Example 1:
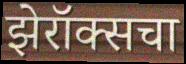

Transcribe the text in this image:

झेरॉक्सचा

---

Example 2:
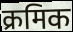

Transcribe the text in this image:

क्रमिक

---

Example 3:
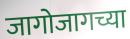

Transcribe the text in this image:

जागोजागच्या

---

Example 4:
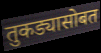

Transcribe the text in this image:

तुकड्यासोबत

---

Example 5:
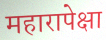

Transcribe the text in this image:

महारापेक्षा